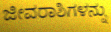
ಜೀವರಾಶಿಗಳನ್ನು